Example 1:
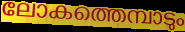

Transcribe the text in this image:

ലോകത്തെമ്പാടും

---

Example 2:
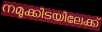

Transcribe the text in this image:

നമുക്കിടയിലേക്ക്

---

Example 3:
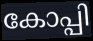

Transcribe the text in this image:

കോപ്പി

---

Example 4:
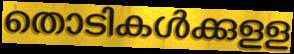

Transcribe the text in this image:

തൊടികൾക്കുളള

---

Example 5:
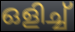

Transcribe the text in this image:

ഒളിച്ച്